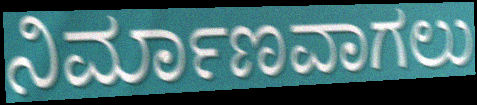
ನಿರ್ಮಾಣವಾಗಲು